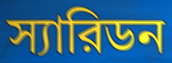
স্যারিডন